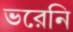
ভরেনি